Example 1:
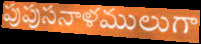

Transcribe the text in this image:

పుపుసనాళములుగా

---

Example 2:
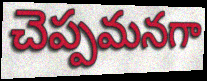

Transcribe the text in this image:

చెప్పమనగా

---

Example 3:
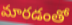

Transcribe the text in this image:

మారడంతో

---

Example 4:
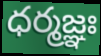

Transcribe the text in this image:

ధర్మజ్ఞః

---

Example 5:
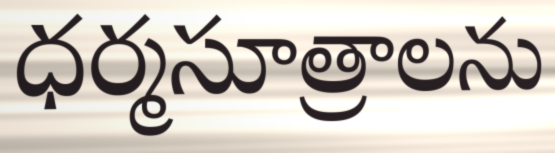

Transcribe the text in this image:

ధర్మసూత్రాలను